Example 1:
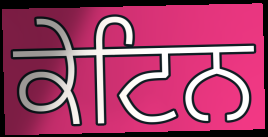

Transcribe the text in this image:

ਕੇਟਿਨ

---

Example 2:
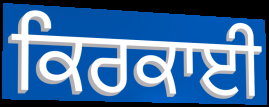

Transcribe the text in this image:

ਕਿਰਕਾਈ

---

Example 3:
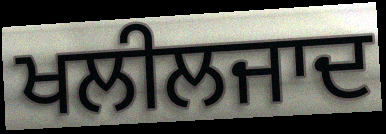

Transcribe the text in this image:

ਖਲੀਲਜਾਦ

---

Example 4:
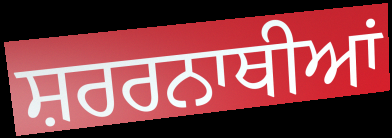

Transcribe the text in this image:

ਸ਼ਰਰਨਾਥੀਆਂ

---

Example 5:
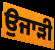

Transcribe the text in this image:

ਉਜਾੜੀ